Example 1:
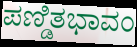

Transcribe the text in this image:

ಪಣ್ಡಿತಭಾವಂ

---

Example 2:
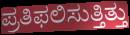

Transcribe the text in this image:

ಪ್ರತಿಫಲಿಸುತ್ತಿತ್ತು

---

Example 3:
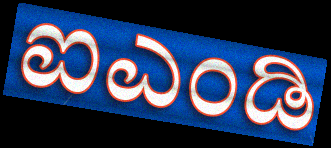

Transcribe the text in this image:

ಐಎಂಡಿ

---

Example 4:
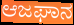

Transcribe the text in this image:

ಆಜಘಾನ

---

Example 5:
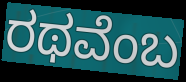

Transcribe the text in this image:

ರಥವೆಂಬ